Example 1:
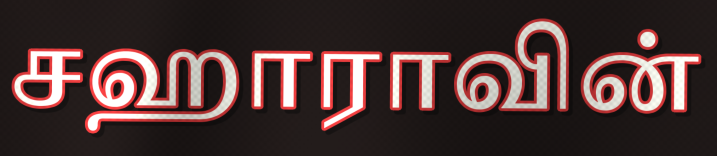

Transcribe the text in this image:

சஹாராவின்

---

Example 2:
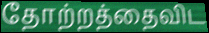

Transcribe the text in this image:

தோற்றத்தைவிட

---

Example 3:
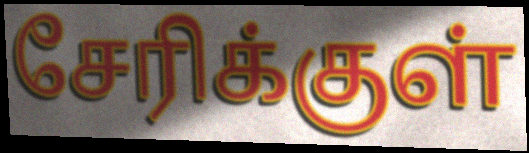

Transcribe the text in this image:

சேரிக்குள்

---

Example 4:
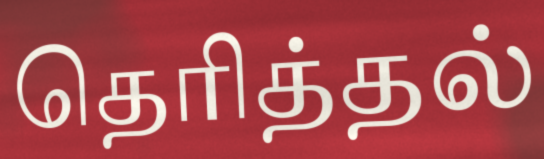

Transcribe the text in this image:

தெரித்தல்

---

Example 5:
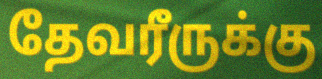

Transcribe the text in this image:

தேவரீருக்கு